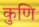
कुणि